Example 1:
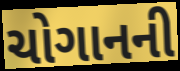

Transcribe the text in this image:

ચોગાનની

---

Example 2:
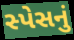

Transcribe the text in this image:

સ્પેસનું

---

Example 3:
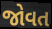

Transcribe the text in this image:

જોવત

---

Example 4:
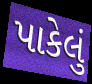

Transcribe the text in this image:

પાકેલું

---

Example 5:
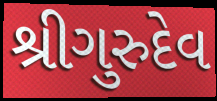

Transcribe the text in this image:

શ્રીગુરુદેવ